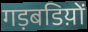
गड़बडिय़ों